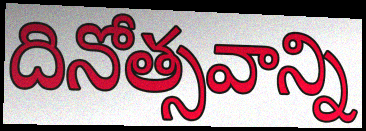
దినోత్సవాన్ని